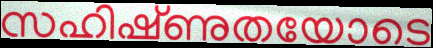
സഹിഷ്‌ണുതയോടെ